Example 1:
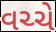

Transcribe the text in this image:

વચ્ચે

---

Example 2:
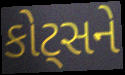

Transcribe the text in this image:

કોટ્સને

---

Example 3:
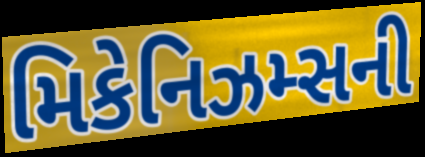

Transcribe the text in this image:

મિકેનિઝમ્સની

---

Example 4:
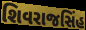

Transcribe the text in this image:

શિવરાજસિંહ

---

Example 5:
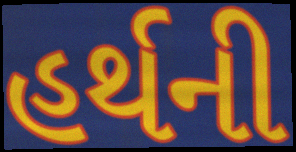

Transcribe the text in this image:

હર્થની